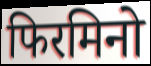
फिरमिनो